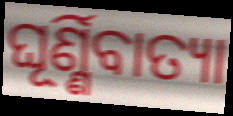
ଘୂର୍ଣ୍ଣିବାତ୍ୟା